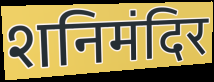
शनिमंदिर